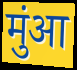
मुंआ